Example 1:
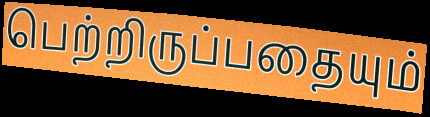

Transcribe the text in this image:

பெற்றிருப்பதையும்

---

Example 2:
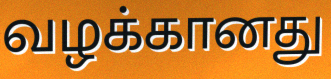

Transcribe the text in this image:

வழக்கானது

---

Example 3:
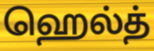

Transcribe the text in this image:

ஹெல்த்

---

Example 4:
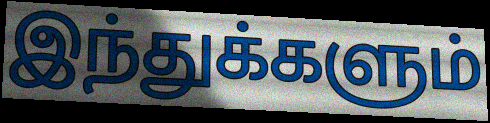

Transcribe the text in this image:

இந்துக்களும்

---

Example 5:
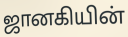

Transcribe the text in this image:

ஜானகியின்